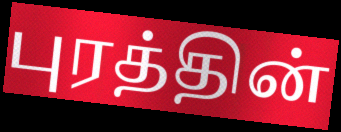
புரத்தின்